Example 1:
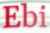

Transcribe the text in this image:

Ebi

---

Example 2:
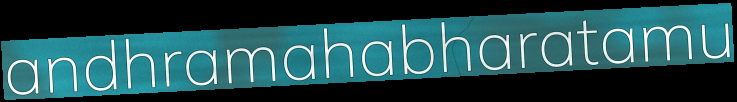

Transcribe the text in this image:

andhramahabharatamu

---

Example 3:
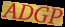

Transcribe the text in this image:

ADGP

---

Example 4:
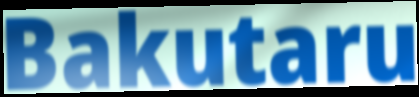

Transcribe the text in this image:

Bakutaru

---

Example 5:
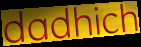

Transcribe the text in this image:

dadhich